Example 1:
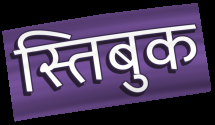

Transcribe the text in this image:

स्तिबुक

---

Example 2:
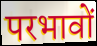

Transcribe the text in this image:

परभावों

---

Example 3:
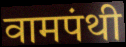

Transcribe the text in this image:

वामपंथी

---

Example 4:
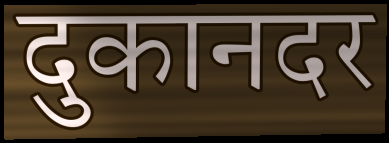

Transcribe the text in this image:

दुकानदर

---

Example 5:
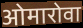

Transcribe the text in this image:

ओमारोवा